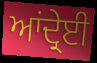
ਆਂਦ੍ਰੇਈ